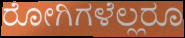
ರೋಗಿಗಳೆಲ್ಲರೂ